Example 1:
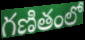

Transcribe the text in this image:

గణితంలో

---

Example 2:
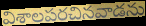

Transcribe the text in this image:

విశాలపరచినవాడను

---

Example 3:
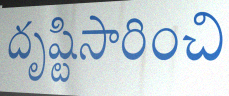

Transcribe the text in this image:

దృష్టిసారించి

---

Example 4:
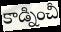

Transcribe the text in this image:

కాడ్నించీ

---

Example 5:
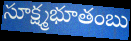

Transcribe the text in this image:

సూక్ష్మభూతంబు